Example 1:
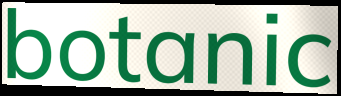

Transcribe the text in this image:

botanic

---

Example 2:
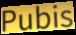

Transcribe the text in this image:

Pubis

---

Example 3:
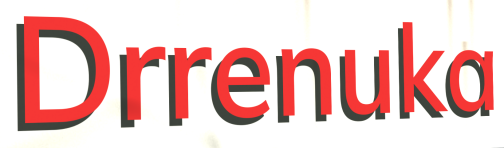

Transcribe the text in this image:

Drrenuka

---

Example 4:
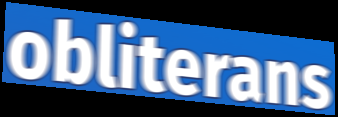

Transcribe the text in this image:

obliterans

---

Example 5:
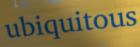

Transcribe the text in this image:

ubiquitous